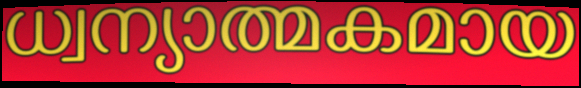
ധ്വന്യാത്മകമായ